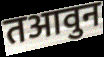
तआवुन